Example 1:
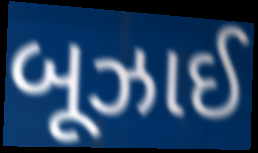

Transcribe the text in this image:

બૂઝાઈ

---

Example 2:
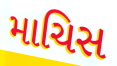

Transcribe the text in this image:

માચિસ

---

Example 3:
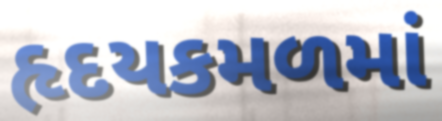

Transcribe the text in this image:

હૃદયકમળમાં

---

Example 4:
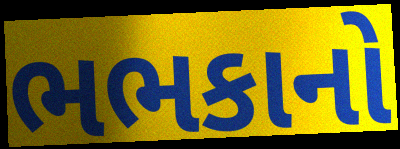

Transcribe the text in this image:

ભભકાનો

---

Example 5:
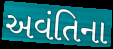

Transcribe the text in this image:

અવંતિના